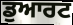
ਡੁਆਰਟ